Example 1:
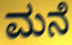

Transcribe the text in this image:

ಮನೆ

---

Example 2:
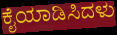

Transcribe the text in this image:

ಕೈಯಾಡಿಸಿದಳು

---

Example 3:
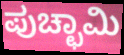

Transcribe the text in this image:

ಪುಚ್ಛಾಮಿ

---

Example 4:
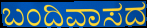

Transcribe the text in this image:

ಬಂದಿವಾಸದ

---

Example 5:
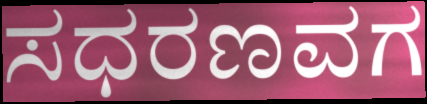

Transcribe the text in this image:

ಸಧರಣವಗ